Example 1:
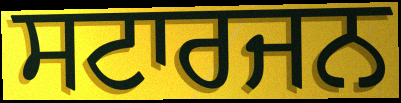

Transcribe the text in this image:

ਸਟਾਰਜਨ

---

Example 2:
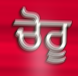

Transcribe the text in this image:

ਚੋਰੂ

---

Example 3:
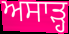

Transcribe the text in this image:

ਅਸਾੜ੍ਹ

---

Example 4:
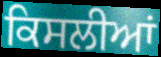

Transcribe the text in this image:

ਕਿਸਲੀਆਂ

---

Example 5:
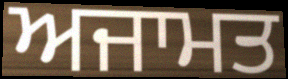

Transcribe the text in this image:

ਅਜਾਮਤ